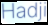
Hadji